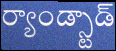
ర్యాండ్స్టాడ్